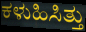
ಕಳುಹಿಸಿತ್ತು